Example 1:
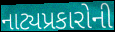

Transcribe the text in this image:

નાટ્યપ્રકારોની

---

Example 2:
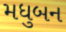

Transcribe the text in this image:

મધુબન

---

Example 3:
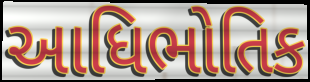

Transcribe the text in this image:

આધિભોતિક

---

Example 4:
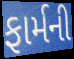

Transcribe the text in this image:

ફાર્મની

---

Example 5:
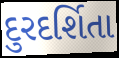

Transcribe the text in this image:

દુરદર્શિતા